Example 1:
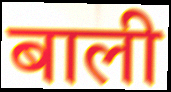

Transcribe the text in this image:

बाली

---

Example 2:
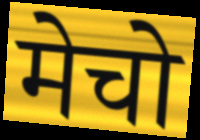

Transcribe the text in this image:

मेचो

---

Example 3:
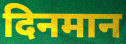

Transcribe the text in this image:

दिनमान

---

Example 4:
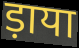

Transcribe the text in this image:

ड़ाया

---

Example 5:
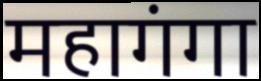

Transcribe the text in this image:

महागंगा